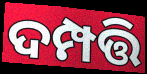
ଦମ୍ପତ୍ତି